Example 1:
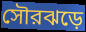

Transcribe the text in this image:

সৌরঝড়ে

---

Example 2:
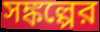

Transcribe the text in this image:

সঙ্কল্পের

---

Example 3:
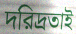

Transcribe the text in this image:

দরিদ্রতাই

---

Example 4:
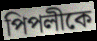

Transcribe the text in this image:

পিপলীকে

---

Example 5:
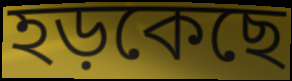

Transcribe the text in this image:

হড়কেছে